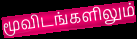
மூவிடங்களிலும்